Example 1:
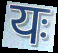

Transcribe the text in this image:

यः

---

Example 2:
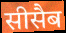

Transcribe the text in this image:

सीसैब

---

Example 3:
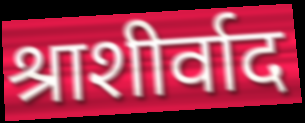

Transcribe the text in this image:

श्राशीर्वाद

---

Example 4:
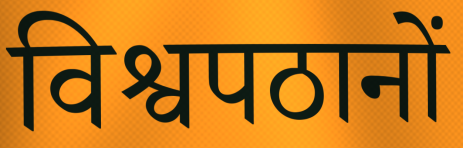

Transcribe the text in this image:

विश्वपठानों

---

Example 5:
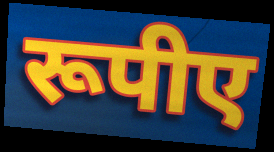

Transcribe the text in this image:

रूपीए